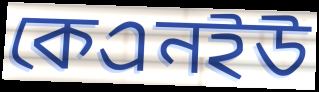
কেএনইউ